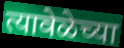
त्यावेळेच्या